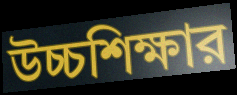
উচ্চশিক্ষার